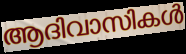
ആദിവാസികൾ